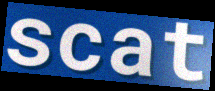
scat